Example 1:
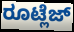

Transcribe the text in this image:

ರೂಟ್ಲೆಜ್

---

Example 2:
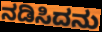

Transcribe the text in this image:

ನಡಿಸಿದನು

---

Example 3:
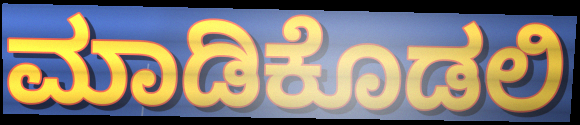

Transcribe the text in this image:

ಮಾಡಿಕೊಡಲಿ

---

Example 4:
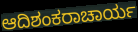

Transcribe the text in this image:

ಆದಿಶಂಕರಾಚಾರ್ಯ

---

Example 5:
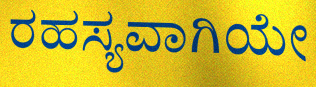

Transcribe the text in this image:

ರಹಸ್ಯವಾಗಿಯೇ